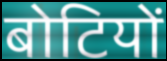
बोटियों